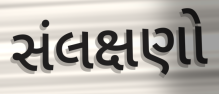
સંલક્ષણો